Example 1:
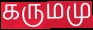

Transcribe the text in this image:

கருமமு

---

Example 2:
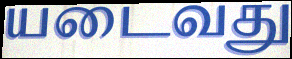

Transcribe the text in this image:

யடைவது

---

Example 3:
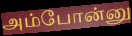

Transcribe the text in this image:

அம்போன்னு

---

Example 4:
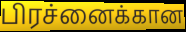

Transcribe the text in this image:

பிரச்னைக்கான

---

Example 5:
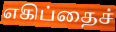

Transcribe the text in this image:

எகிப்தைச்